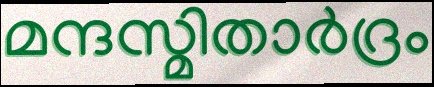
മന്ദസ്മിതാർദ്രം